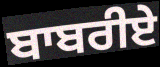
ਬਾਬਰੀਏ